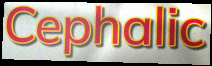
Cephalic